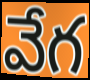
వేగ